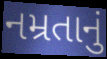
નમ્રતાનું